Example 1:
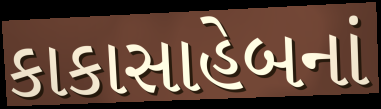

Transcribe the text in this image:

કાકાસાહેબનાં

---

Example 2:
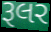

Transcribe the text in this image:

રૂલર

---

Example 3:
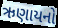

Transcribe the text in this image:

ઋણાયનો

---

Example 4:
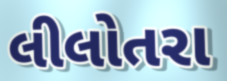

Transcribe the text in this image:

લીલોતરા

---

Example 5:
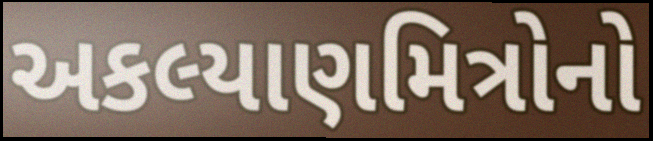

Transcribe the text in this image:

અકલ્યાણમિત્રોનો